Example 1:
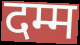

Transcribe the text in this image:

दम्म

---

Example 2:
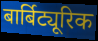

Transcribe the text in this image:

बार्बिट्यूरिक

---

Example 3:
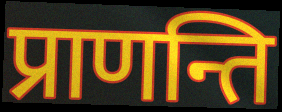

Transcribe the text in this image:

प्राणन्ति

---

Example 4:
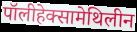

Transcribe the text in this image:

पॉलीहेक्सामेथिलीन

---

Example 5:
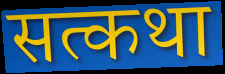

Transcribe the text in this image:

सत्कथा